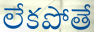
లేకపోతే